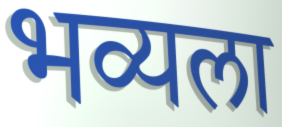
भव्यला